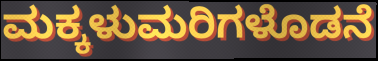
ಮಕ್ಕಳುಮರಿಗಳೊಡನೆ